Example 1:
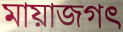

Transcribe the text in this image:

মায়াজগৎ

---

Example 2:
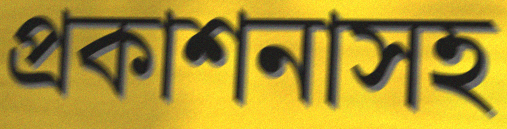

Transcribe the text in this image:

প্রকাশনাসহ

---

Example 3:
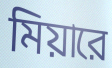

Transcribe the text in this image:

মিয়ারে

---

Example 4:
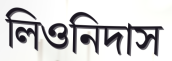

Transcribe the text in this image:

লিওনিদাস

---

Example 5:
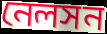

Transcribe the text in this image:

নেলসন